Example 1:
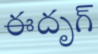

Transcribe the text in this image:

ఈదృగ్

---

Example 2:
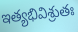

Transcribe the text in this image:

ఇత్యభివిశ్రుతః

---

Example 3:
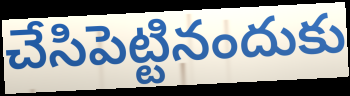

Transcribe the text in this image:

చేసిపెట్టినందుకు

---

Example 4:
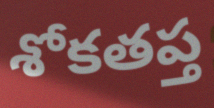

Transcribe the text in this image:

శోకతప్త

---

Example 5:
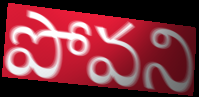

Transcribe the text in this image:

పోవని